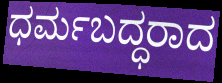
ಧರ್ಮಬದ್ಧರಾದ